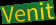
Venit